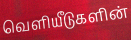
வெளியீடுகளின்